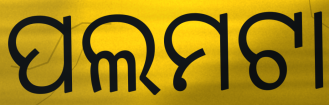
ପଲମଟା